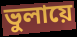
ভুলায়ে